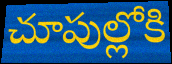
చూపుల్లోకి